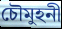
চৌমুহনী